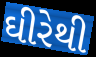
ઘીરેથી